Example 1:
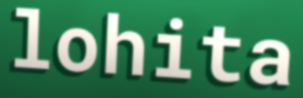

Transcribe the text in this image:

lohita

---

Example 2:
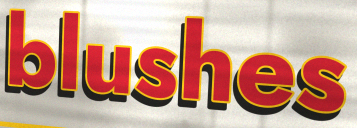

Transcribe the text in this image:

blushes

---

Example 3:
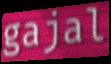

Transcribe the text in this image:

gajal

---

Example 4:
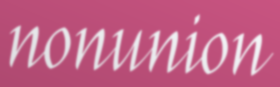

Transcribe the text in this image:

nonunion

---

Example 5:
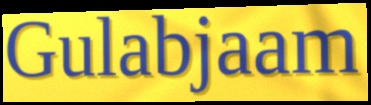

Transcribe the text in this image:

Gulabjaam